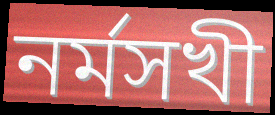
নর্মসখী